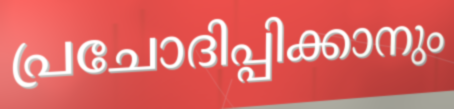
പ്രചോദിപ്പിക്കാനും